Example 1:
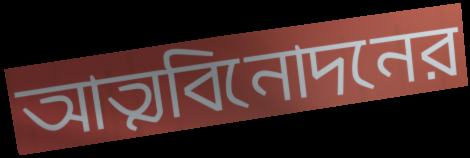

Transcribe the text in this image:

আত্মবিনোদনের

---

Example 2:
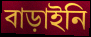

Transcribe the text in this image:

বাড়াইনি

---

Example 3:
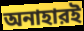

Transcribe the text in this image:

অনাহারই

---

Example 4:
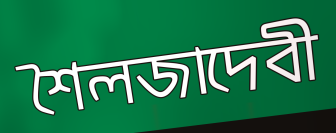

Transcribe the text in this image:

শৈলজাদেবী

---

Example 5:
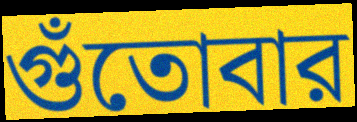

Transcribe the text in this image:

গুঁতোবার